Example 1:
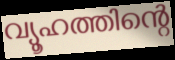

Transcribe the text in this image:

വ്യൂഹത്തിന്റെ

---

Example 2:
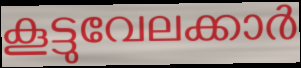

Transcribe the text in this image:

കൂട്ടുവേലക്കാർ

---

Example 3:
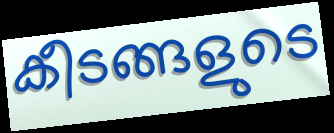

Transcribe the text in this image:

കീടങ്ങളുടെ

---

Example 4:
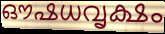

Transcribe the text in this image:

ഔഷധവൃക്ഷം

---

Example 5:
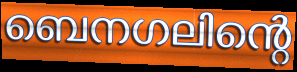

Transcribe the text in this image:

ബെനഗലിന്റെ